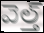
వెల్త్